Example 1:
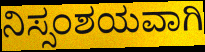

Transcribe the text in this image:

ನಿಸ್ಸಂಶಯವಾಗಿ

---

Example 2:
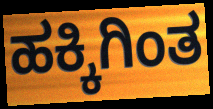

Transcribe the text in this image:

ಹಕ್ಕಿಗಿಂತ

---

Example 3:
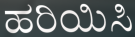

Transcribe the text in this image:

ಹರಿಯಿಸಿ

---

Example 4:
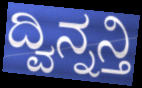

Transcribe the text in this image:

ದ್ವಿನ್ನನ್ತಿ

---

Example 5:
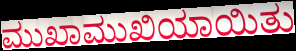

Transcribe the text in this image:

ಮುಖಾಮುಖಿಯಾಯಿತು